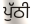
ਪੁੱਠੀ